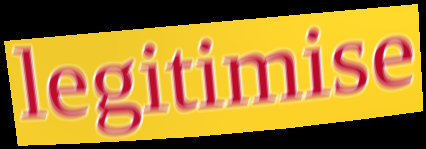
legitimise